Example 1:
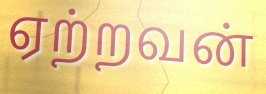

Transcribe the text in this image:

ஏற்றவன்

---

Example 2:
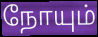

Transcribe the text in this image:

நோயும்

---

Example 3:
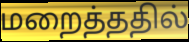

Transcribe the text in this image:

மறைத்ததில்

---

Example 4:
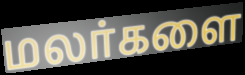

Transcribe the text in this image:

மலர்களை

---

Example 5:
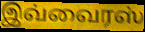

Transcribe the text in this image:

இவ்வைரஸ்